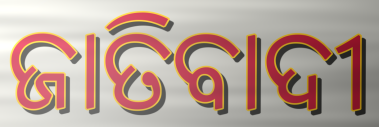
ଜାତିବାଦୀ